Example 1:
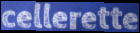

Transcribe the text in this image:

cellerette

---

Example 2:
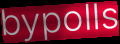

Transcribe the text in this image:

bypolls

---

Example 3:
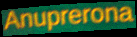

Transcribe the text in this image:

Anuprerona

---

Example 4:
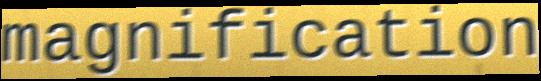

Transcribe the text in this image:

magnification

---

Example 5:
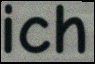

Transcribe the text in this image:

ich